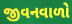
જીવનવાળો